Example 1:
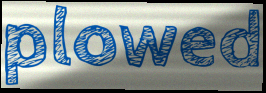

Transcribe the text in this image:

plowed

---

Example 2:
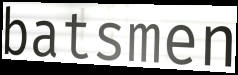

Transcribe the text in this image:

batsmen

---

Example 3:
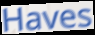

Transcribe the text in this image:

Haves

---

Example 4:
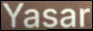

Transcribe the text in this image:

Yasar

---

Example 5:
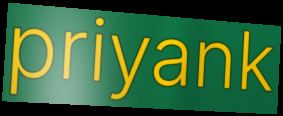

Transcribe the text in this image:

priyank